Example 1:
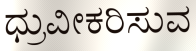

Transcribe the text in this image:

ಧ್ರುವೀಕರಿಸುವ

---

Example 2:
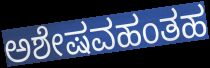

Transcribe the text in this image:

ಅಶೇಷವಹಂತಹ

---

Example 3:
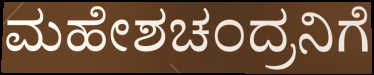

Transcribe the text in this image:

ಮಹೇಶಚಂದ್ರನಿಗೆ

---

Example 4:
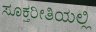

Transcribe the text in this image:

ಸೂಕ್ತರೀತಿಯಲ್ಲಿ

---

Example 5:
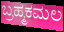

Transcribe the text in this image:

ಬ್ರಹ್ಮಕಮಲ